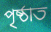
পৃষ্ঠাত